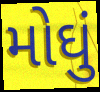
મોઘું